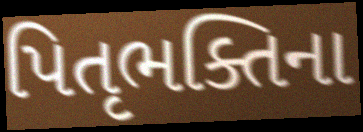
પિતૃભક્તિના